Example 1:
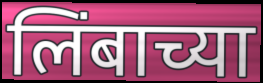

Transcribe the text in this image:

लिंबाच्या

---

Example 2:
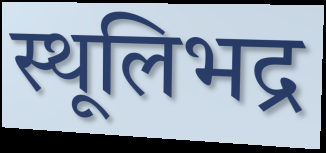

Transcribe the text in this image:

स्थूलिभद्र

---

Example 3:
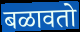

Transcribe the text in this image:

बळावतो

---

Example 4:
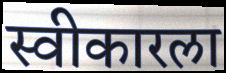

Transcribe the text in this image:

स्वीकारला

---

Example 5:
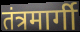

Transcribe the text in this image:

तंत्रमार्गी